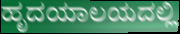
ಹೃದಯಾಲಯದಲ್ಲಿ